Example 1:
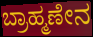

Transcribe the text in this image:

ಬ್ರಾಹ್ಮಣೇನ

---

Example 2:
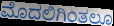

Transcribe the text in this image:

ಮೊದಲಿಗಿಂತಲೂ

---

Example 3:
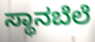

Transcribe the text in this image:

ಸ್ಥಾನಬೆಲೆ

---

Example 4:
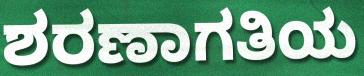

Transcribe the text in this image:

ಶರಣಾಗತಿಯ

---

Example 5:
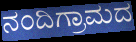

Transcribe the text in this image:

ನಂದಿಗ್ರಾಮದ